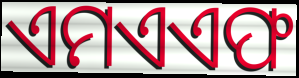
ଏମଏଏଫ